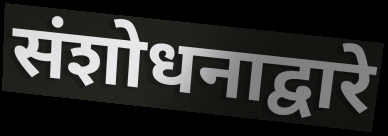
संशोधनाद्वारे